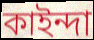
কাইন্দা